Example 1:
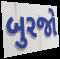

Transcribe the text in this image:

બુરજો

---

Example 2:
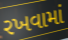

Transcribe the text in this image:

રખવામાં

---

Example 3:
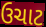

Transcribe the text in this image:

ઉચાટ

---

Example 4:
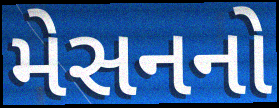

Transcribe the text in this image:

મેસનનો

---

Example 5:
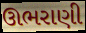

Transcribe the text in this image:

ઊભરાણી